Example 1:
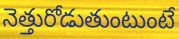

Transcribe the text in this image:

నెత్తురోడుతుంటుంటే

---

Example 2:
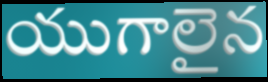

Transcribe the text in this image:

యుగాలైన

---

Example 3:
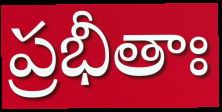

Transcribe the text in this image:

ప్రభీతాః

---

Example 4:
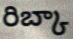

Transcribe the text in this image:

రిబ్కా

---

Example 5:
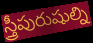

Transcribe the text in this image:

స్త్రీపురుషుల్ని